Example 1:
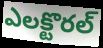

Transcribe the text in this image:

ఎలక్టొరల్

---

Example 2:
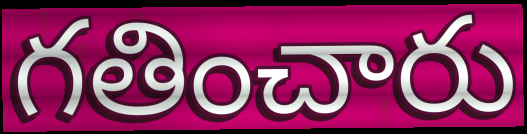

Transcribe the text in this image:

గతించారు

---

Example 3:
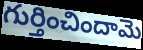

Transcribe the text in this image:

గుర్తించిందామె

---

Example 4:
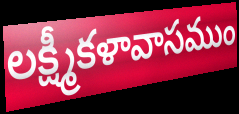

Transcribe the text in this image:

లక్ష్మీకళావాసముం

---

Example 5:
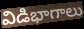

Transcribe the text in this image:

విడిభాగాలు